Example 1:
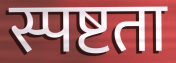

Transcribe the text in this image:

स्पष्टता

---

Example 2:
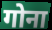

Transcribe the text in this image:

गोना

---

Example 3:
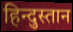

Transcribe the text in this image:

हिन्दुस्तान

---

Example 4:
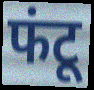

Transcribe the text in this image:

फंटू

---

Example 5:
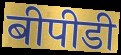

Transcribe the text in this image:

बीपीडी